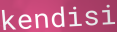
kendisi